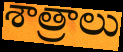
శాత్రాలు